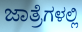
ಜಾತ್ರೆಗಳಲ್ಲಿ